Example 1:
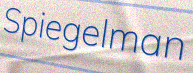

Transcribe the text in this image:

Spiegelman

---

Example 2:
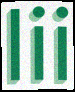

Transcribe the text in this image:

lii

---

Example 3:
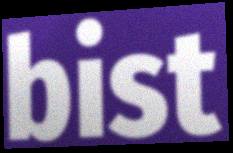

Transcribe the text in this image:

bist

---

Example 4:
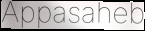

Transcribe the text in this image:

Appasaheb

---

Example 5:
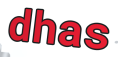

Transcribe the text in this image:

dhas